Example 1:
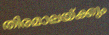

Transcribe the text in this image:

തിരമാലയ്ക്കും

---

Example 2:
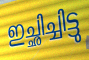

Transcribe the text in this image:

ഇച്ഛിച്ചിട്ടു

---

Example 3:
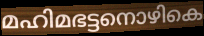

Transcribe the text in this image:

മഹിമഭട്ടനൊഴികെ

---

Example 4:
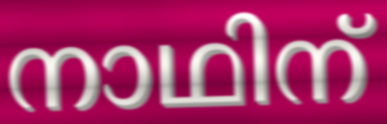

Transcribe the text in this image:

നാഥിന്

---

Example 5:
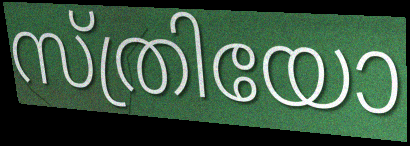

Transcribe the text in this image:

സ്ത്രിയോ